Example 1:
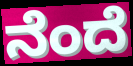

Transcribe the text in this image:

ನೆಂದೆ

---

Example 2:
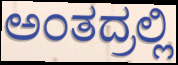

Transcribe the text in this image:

ಅಂತದ್ರಲ್ಲಿ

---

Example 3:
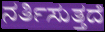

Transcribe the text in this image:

ನರ್ತಿಸುತ್ತದೆ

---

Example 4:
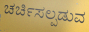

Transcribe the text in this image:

ಚರ್ಚಿಸಲ್ಪಡುವ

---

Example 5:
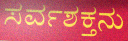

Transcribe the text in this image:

ಸರ್ವಶಕ್ತನು